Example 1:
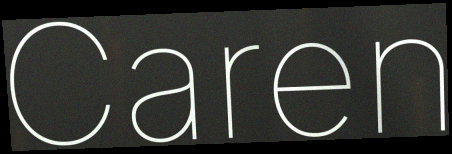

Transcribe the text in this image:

Caren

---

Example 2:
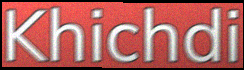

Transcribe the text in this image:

Khichdi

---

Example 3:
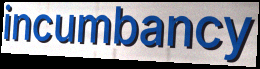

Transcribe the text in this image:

incumbancy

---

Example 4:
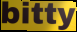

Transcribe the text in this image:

bitty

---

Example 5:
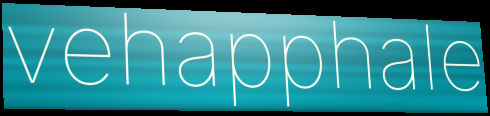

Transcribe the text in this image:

vehapphale